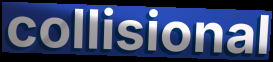
collisional